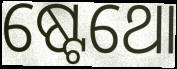
ଷ୍ଟେଥୋ